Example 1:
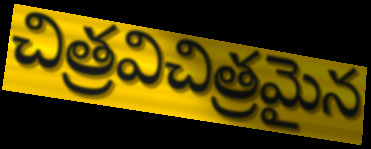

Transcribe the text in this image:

చిత్రవిచిత్రమైన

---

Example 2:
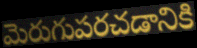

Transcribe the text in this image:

మెరుగుపరచడానికి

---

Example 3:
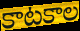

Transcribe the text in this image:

కాటకాల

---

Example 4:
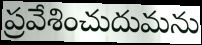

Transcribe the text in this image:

ప్రవేశించుదుమను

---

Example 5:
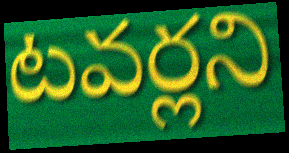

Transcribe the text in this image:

టవర్లని